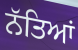
ਨੱਤਿਆਂ